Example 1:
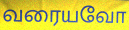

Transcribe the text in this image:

வரையவோ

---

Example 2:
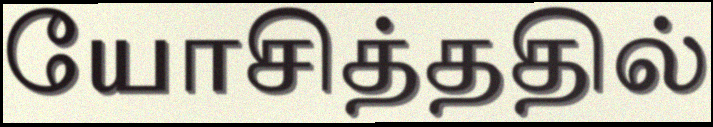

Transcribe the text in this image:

யோசித்ததில்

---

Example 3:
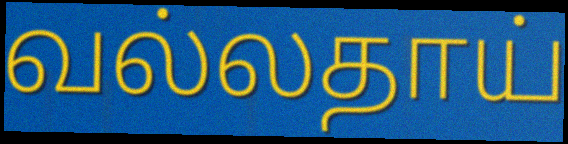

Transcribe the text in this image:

வல்லதாய்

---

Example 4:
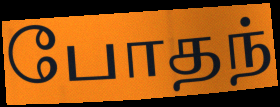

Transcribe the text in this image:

போதந்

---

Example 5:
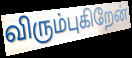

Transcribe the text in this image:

விரும்புகிறேன்